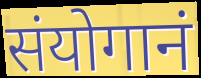
संयोगानं